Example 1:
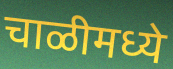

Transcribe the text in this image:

चाळीमध्ये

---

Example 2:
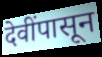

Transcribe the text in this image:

देवींपासून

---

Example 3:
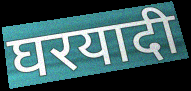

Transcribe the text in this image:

घरयादी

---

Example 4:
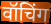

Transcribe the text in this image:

वॉचिंग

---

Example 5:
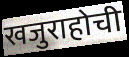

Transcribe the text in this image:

खजुराहोची